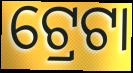
ଟ୍ରେଟା